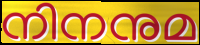
നിനനുമ